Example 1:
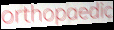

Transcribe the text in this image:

orthopaedic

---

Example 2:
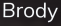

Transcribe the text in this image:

Brody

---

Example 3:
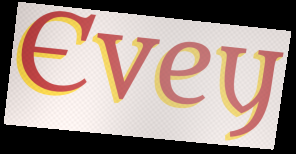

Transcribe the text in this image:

Evey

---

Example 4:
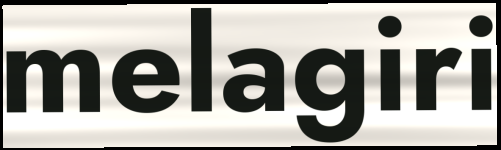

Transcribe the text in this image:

melagiri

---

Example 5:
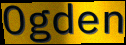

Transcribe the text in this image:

Ogden